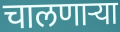
चालणाऱ्या